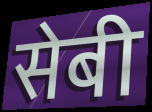
सेबी